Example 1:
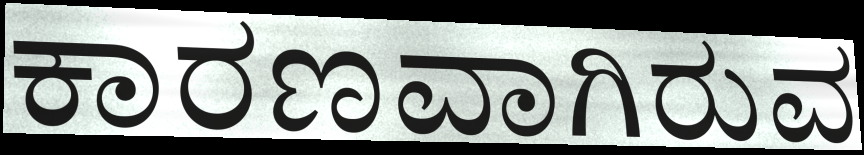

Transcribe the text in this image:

ಕಾರಣವಾಗಿರುವ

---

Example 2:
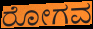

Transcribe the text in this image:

ರೋಗವ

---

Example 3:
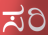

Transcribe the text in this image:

ಸರಿ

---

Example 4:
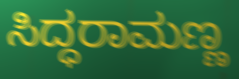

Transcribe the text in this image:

ಸಿದ್ಧರಾಮಣ್ಣ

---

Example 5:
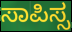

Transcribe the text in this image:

ಸಾಪಿಸ್ಸ